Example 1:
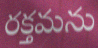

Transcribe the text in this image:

రక్తమను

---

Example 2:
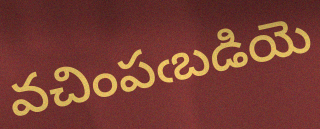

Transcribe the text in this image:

వచింపఁబడియె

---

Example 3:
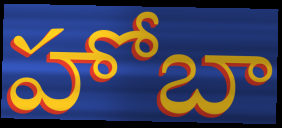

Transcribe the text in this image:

హోబా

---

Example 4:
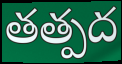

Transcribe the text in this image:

తత్పద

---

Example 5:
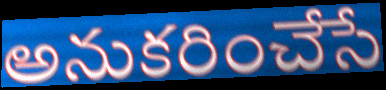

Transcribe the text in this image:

అనుకరించేసే